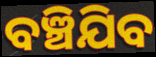
ବଞ୍ଚିଯିବ